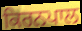
ਕਿਰਨਪਾਲ